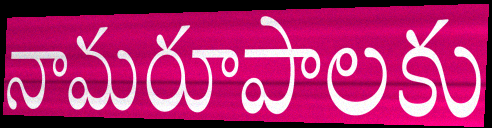
నామరూపాలకు